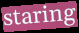
staring